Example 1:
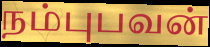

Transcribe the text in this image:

நம்புபவன்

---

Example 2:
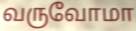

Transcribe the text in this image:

வருவோமா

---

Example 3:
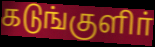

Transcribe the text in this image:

கடுங்குளிர்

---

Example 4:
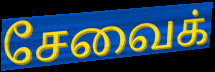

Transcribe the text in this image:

சேவைக்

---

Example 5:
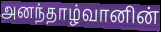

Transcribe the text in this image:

அனந்தாழ்வானின்